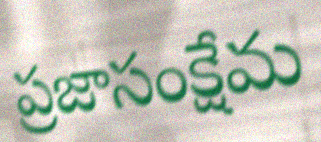
ప్రజాసంక్షేమ